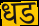
धड